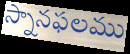
స్నానఫలము